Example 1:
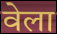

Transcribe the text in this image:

वेला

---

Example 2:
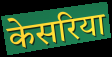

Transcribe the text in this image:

केसरिया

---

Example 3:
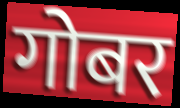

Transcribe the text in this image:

गोबर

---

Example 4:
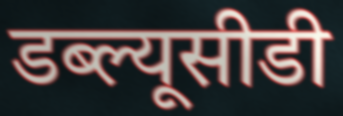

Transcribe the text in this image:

डब्ल्यूसीडी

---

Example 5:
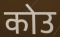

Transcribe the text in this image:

कोउ